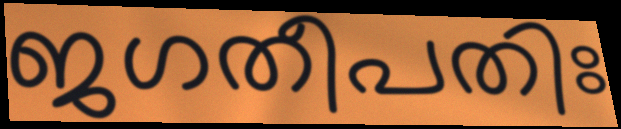
ജഗതീപതിഃ